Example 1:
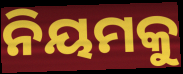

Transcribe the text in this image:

ନିୟମକୁ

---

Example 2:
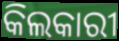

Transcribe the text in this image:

କିଲକାରୀ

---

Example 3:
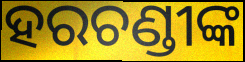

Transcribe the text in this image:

ହରଚଣ୍ଡୀଙ୍କ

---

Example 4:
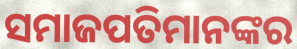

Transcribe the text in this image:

ସମାଜପତିମାନଙ୍କର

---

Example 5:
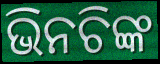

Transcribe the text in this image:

ଭିନଚିଙ୍କ